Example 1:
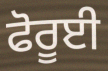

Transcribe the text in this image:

ਫੋਰੂਈ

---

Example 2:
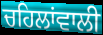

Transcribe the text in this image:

ਚਹਿਲਾਂਵਾਲੀ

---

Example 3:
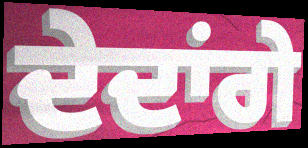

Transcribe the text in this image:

ਦੇਦਾਂਗੇ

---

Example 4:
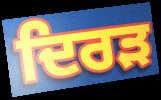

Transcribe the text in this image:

ਦਿਰੜ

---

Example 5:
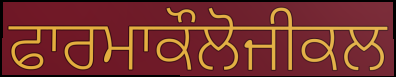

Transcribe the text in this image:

ਫਾਰਮਾਕੌਲੋਜੀਕਲ